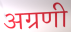
अग्रणी